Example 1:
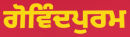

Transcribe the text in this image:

ਗੋਵਿੰਦਪੁਰਮ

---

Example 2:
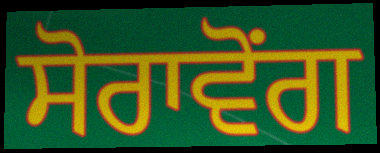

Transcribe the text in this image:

ਸੋਰਾਵੋਂਗ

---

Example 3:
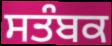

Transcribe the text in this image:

ਸਤੰਬਕ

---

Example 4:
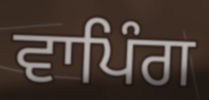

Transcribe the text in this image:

ਵਾਪਿੰਗ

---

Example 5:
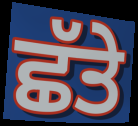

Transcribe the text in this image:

ਛੱਤੇ